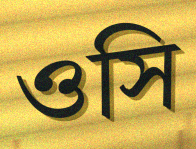
ওসি